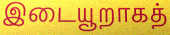
இடையூறாகத்